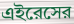
এইরেসের